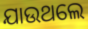
ଯାଉଥଲେ